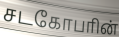
சடகோபரின்